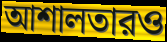
আশালতারও